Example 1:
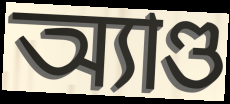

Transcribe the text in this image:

অ্যাণ্ড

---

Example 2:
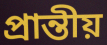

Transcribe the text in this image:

প্ৰান্তীয়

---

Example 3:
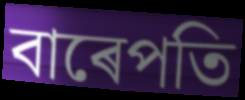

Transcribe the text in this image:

বাৰেপতি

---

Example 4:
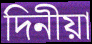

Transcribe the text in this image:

দিনীয়া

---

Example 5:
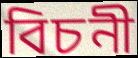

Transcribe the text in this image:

বিচনী